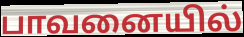
பாவனையில்